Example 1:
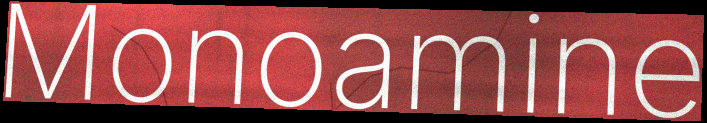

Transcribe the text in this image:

Monoamine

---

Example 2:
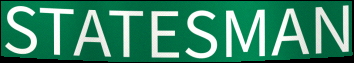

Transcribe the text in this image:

STATESMAN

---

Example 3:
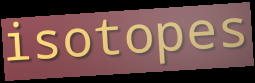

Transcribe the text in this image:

isotopes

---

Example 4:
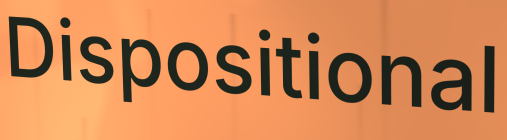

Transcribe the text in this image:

Dispositional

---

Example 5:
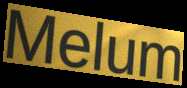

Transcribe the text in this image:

Melum